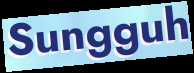
Sungguh